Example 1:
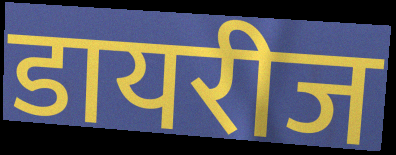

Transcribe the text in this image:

डायरीज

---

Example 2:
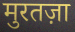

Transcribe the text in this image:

मुरतज़ा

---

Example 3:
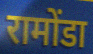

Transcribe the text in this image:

रामोंडा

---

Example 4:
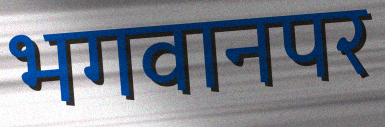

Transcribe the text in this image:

भगवानपर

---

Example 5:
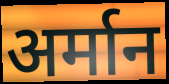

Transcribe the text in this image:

अर्मान